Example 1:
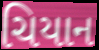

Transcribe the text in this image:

ચિયાન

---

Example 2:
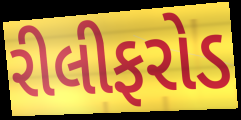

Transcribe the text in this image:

રીલીફરોડ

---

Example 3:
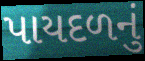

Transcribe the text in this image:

પાયદળનું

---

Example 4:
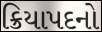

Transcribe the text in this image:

ક્રિયાપદનો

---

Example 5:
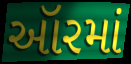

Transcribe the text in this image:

ઑરમાં